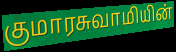
குமாரசுவாமியின்